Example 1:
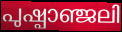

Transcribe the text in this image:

പുഷ്പാഞ്ജലി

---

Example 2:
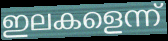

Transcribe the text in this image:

ഇലകളെന്ന്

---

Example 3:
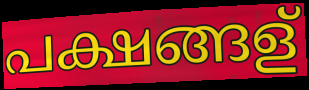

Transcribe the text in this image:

പക്ഷങ്ങള്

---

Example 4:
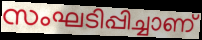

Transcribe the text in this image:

സംഘടിപ്പിച്ചാണ്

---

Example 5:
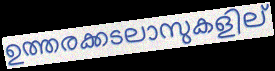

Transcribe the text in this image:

ഉത്തരക്കടലാസുകളില്